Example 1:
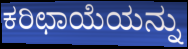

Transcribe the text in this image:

ಕರಿಛಾಯೆಯನ್ನು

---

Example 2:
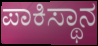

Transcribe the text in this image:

ಪಾಕಿಸ್ಥಾನ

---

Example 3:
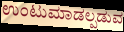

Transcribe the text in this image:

ಉಂಟುಮಾಡಲ್ಪಡುವ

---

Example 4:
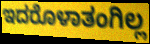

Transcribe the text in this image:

ಇದರೊಳಾತಂಗಿಲ್ಲ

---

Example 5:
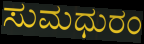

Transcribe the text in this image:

ಸುಮಧುರಂ